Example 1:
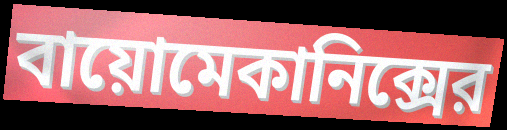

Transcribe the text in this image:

বায়োমেকানিক্সের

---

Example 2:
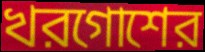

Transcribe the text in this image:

খরগোশের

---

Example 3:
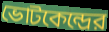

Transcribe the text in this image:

ভোটকেন্দ্রের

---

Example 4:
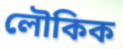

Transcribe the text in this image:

লৌকিক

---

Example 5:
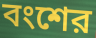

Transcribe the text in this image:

বংশের